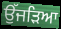
ਉੱਜੜਿਆ